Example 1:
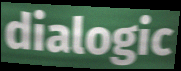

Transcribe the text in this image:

dialogic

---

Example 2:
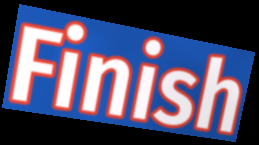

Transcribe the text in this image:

Finish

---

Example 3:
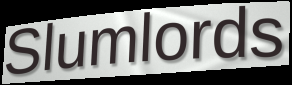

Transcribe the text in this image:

Slumlords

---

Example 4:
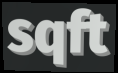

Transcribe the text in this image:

sqft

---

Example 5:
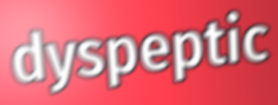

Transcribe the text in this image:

dyspeptic